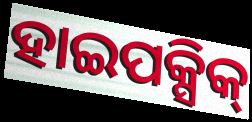
ହାଇପକ୍ସିକ୍